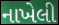
નાખેલી